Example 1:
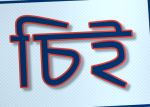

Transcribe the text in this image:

চিই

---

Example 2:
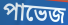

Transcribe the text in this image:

পাভেজ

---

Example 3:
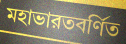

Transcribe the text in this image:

মহাভারতবর্ণিত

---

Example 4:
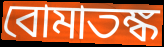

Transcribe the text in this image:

বোমাতঙ্ক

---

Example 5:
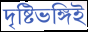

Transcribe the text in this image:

দৃষ্টিভঙ্গিই